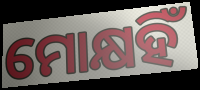
ମୋକ୍ଷହିଁ